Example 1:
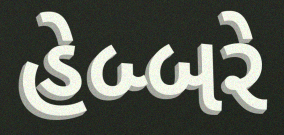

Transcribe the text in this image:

હેબ્બરે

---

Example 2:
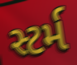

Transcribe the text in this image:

સ્ટર્મ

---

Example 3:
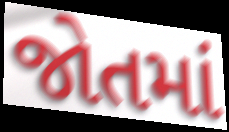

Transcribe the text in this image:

જોતમાં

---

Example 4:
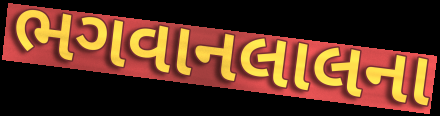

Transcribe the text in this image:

ભગવાનલાલના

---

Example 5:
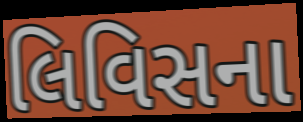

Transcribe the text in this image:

લિવિસના